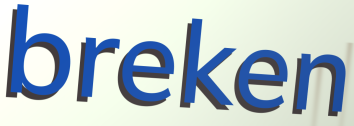
breken